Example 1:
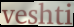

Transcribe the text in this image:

veshti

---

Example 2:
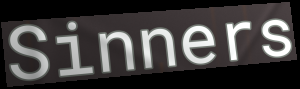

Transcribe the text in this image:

Sinners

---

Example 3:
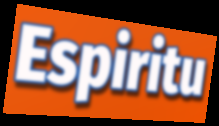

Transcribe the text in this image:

Espiritu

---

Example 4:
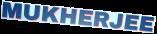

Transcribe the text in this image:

MUKHERJEE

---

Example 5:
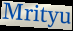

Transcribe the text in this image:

Mrityu